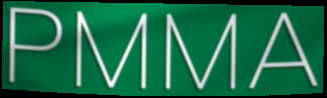
PMMA